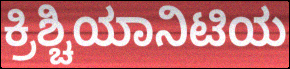
ಕ್ರಿಶ್ಚಿಯಾನಿಟಿಯ